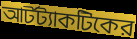
আর্টট্যাকটিকের